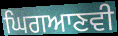
ਘਿਗਆਣਵੀ